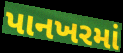
પાનખરમાં